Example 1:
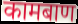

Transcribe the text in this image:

कामबाण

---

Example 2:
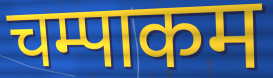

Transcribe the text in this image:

चम्पाकम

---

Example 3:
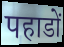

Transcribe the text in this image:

पहाडों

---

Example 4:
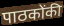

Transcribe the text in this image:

पाठकोंकी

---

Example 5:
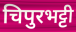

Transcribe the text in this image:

चिपुरभट्टी